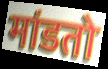
मांडतो